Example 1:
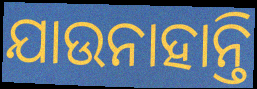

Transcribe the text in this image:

ଯାଉନାହାନ୍ତି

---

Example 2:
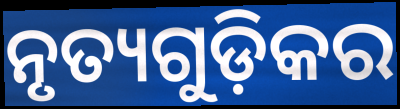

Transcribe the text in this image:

ନୃତ୍ୟଗୁଡ଼ିକର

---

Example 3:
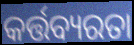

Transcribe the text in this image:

କର୍ତ୍ତବ୍ୟରତା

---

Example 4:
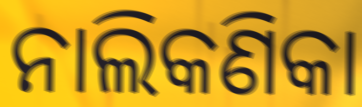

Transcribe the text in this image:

ନାଲିକଣିକା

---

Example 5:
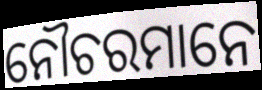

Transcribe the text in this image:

ନୌଚରମାନେ